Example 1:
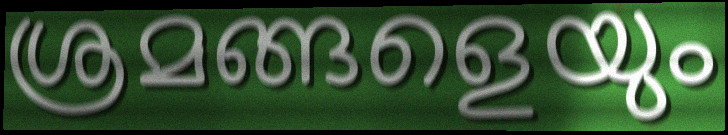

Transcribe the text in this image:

ശ്രമങ്ങളെയും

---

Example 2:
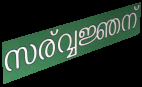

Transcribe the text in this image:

സര്വ്വജ്ഞന്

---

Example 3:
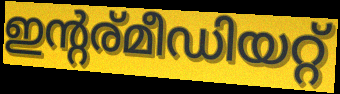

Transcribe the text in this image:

ഇന്റര്മീഡിയറ്റ്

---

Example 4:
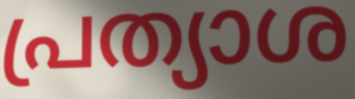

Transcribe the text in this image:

പ്രത്യാശ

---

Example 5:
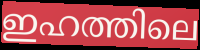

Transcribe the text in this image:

ഇഹത്തിലെ